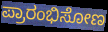
ಪ್ರಾರಂಭಿಸೋಣ